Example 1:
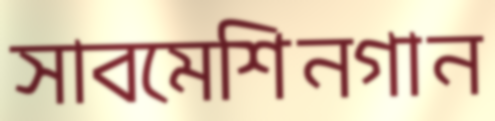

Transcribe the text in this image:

সাবমেশিনগান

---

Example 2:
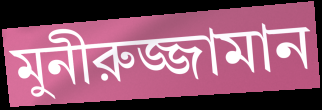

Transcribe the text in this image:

মুনীরুজ্জামান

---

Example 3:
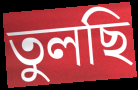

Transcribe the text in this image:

তুলছি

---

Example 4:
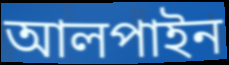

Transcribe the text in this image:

আলপাইন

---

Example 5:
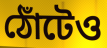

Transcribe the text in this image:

ঠোঁটেও